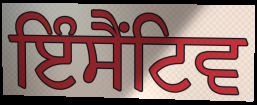
ਇੰਸੈਂਟਿਵ